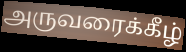
அருவரைக்கீழ்